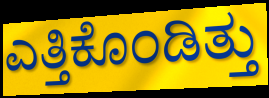
ಎತ್ತಿಕೊಂಡಿತ್ತು